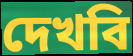
দেখবি